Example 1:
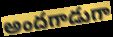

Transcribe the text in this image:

అందగాడుగా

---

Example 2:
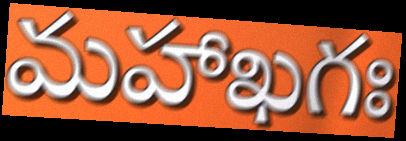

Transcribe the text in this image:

మహాఖగః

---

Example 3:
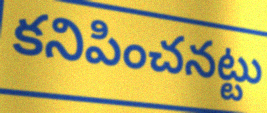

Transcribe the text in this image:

కనిపించనట్టు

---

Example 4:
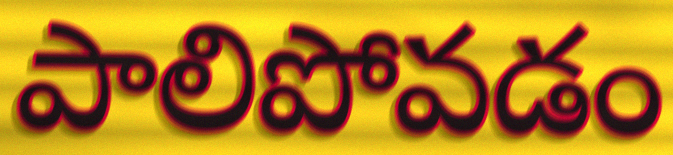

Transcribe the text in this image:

పాలిపోవడం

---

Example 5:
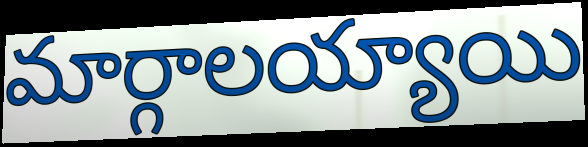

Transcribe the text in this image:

మార్గాలయ్యాయి